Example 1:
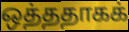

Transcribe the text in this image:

ஒத்ததாகக்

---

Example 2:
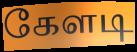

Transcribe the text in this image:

கேளடி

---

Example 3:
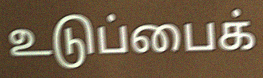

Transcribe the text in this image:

உடுப்பைக்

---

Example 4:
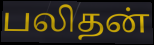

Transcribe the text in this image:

பலிதன்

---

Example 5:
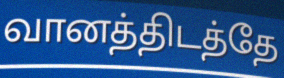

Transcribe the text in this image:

வானத்திடத்தே